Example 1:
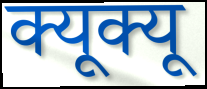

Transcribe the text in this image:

क्यूक्यू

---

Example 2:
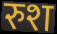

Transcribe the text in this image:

रुश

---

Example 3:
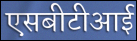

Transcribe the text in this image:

एसबीटीआई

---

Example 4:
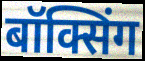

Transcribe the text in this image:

बॉक्सिंग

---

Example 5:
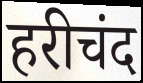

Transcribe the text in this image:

हरीचंद